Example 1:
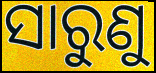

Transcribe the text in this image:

ସାରୁଣୁ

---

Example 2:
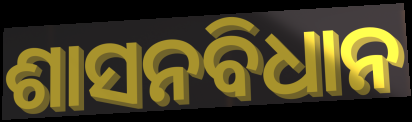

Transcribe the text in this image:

ଶାସନବିଧାନ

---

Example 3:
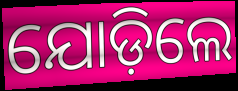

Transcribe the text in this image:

ଯୋଡ଼ିଲେ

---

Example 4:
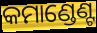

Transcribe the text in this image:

କମାଣ୍ଡେଣ୍ଟ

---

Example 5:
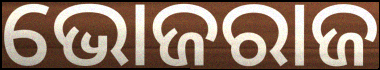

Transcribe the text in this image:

ଭୋଜରାଜ